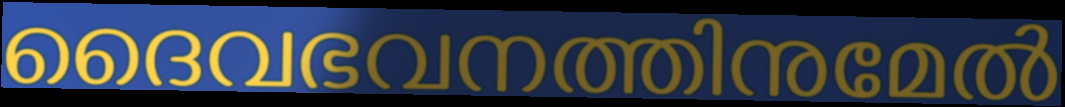
ദൈവഭവനത്തിനുമേൽ